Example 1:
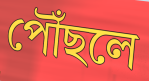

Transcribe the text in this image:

পৌঁছলে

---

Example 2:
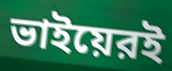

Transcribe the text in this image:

ভাইয়েরই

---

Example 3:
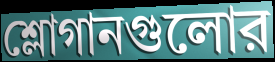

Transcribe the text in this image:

শ্লোগানগুলোর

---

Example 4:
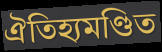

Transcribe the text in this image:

ঐতিহ্যমণ্ডিত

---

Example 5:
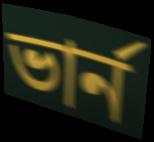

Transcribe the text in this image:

ভার্ন